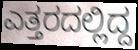
ಎತ್ತರದಲ್ಲಿದ್ದ